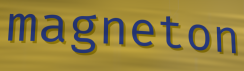
magneton